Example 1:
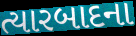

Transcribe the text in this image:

ત્યારબાદના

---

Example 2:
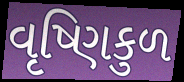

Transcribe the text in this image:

વૃષ્ણિકુળ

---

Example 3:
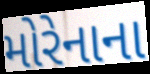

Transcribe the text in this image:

મોરેનાના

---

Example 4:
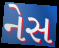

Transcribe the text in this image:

નેસ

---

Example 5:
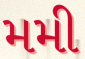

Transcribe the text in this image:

મમી